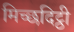
मिच्छदिट्ठी